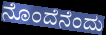
ನೊಂದೆನೆಂದು